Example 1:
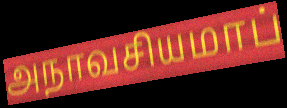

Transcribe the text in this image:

அநாவசியமாப்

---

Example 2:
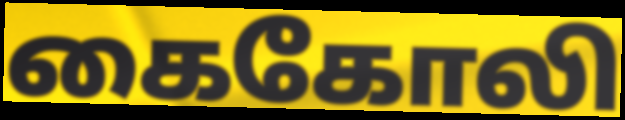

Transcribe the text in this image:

கைகோலி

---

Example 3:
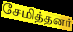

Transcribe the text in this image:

சேமித்தனர்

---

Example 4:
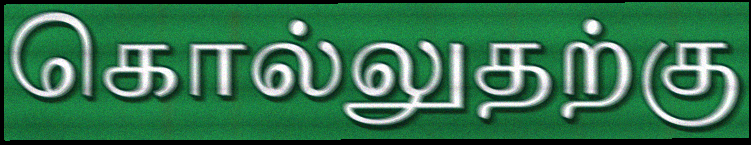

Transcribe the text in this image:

கொல்லுதற்கு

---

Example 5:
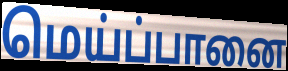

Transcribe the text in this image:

மெய்ப்பானை